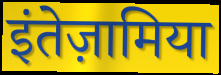
इंतेज़ामिया